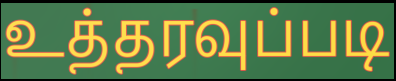
உத்தரவுப்படி